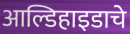
आल्डिहाइडाचे